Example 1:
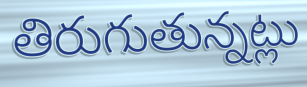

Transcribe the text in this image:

తిరుగుతున్నట్లు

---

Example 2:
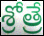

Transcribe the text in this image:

శ్రోత్రే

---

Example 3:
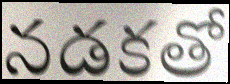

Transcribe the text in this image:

నడకతో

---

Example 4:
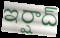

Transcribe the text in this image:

ఇర్షాద్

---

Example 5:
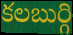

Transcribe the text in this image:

కలబుర్గి